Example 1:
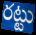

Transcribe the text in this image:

రట్టు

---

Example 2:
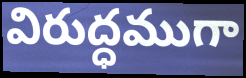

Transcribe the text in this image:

విరుద్ధముగా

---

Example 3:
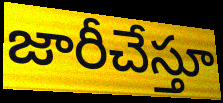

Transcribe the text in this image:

జారీచేస్తూ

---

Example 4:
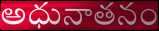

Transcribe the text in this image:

అధునాతనం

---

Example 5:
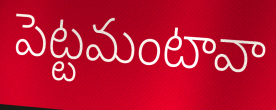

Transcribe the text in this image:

పెట్టమంటావా